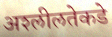
अश्लीलतेकडे